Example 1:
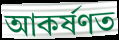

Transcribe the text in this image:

আকৰ্ষণত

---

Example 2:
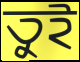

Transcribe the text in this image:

তুই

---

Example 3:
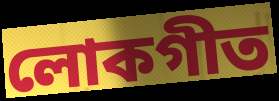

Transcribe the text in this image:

লোকগীত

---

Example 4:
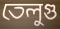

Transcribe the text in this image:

তেলুগু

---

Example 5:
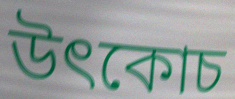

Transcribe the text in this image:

উৎকোচ